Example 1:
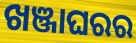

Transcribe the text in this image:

ଖଞ୍ଜାଘରର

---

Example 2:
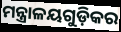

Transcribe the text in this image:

ମନ୍ତ୍ରାଳୟଗୁଡ଼ିକର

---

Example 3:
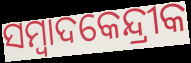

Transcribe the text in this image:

ସମ୍ୱାଦକେନ୍ଦ୍ରୀକ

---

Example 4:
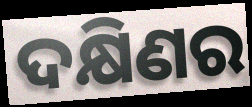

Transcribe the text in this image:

ଦକ୍ଷିଣର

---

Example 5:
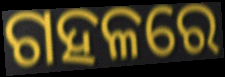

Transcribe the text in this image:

ଗହଳରେ